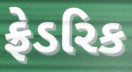
ફ્રેડરિક